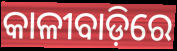
କାଳୀବାଡ଼ିରେ